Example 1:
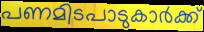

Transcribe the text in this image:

പണമിടപാടുകാർക്ക്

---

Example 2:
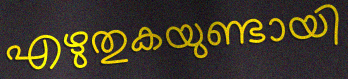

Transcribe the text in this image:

എഴുതുകയുണ്ടായി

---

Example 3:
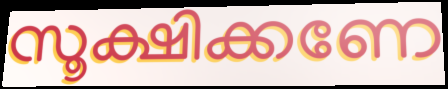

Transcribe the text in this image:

സൂക്ഷിക്കണേ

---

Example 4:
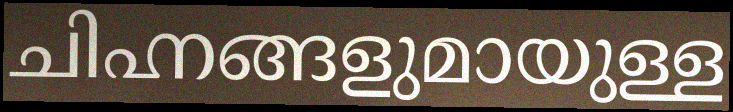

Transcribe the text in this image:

ചിഹ്നങ്ങളുമായുള്ള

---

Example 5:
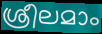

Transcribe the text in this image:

ശ്രീലമാം